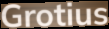
Grotius